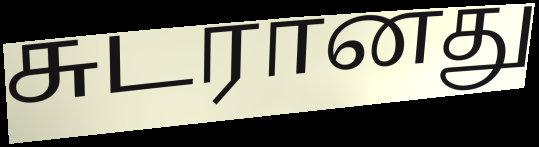
சுடரானது